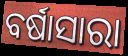
ବର୍ଷାସାରା